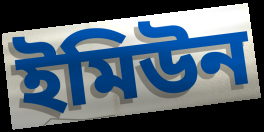
ইমিউন